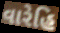
વારેહિ